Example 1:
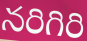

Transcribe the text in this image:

నరిగిరి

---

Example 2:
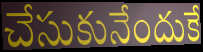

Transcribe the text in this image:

చేసుకునేందుకే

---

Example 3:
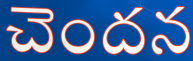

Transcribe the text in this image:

చెందన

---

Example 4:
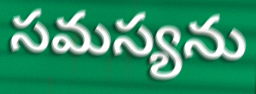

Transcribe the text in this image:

సమస్యను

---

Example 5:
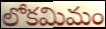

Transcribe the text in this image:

లోకమిమం